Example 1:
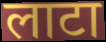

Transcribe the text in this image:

लाटा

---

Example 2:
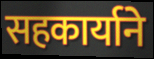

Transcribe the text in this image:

सहकार्याने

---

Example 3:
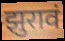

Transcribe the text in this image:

झुरावं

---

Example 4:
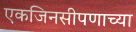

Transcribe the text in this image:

एकजिनसीपणाच्या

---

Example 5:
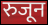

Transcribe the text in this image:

रुजून